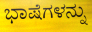
ಭಾಷೆಗಳನ್ನು